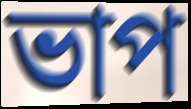
ভাপ